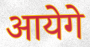
आयेगे